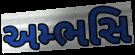
અમ્ભસિ